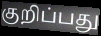
குறிப்பது